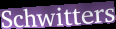
Schwitters